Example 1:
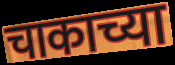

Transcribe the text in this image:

चाकाच्या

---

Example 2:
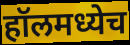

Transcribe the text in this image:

हॉलमध्येच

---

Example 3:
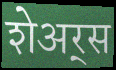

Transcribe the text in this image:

शेअर्स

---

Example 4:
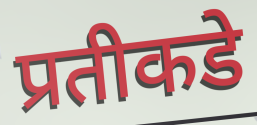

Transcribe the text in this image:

प्रतीकडे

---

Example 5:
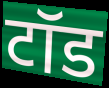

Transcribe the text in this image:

टॉड